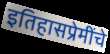
इतिहासप्रेमींचे